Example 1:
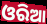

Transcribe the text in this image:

ଓରିଆ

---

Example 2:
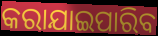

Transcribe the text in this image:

କରାଯାଇପାରିବ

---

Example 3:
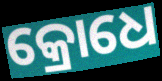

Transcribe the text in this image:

କ୍ରୋଧେ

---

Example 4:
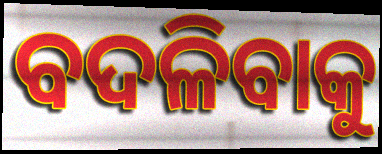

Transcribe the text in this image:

ବଦଳିବାକୁ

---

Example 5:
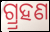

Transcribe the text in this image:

ଗ୍ର୍ରହଣ